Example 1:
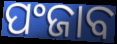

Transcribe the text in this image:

ପଂଜାବ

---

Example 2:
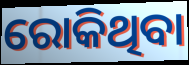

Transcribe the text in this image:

ରୋକିଥିବା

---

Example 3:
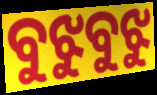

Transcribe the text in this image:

ବୁଝୁବୁଝୁ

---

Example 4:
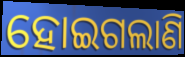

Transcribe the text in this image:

ହୋଇଗଲାଣି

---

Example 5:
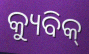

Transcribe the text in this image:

କ୍ୟୁବିକ୍